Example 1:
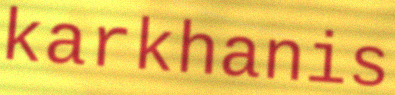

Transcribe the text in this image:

karkhanis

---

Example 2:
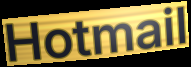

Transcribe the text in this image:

Hotmail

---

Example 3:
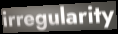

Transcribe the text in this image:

irregularity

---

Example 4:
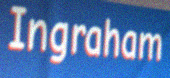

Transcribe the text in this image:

Ingraham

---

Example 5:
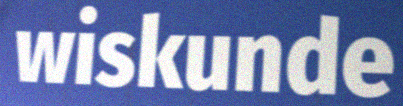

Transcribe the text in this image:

wiskunde